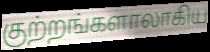
குற்றங்களாலாகிய